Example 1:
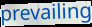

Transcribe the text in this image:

prevailing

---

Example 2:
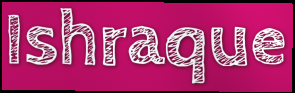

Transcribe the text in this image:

Ishraque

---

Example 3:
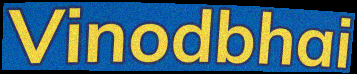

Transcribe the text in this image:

Vinodbhai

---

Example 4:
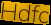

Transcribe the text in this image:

Hdfc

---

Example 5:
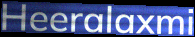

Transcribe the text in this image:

Heeralaxmi